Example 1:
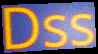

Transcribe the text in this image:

Dss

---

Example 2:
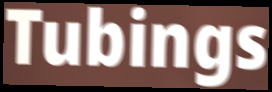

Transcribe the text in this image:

Tubings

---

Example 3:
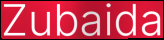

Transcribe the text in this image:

Zubaida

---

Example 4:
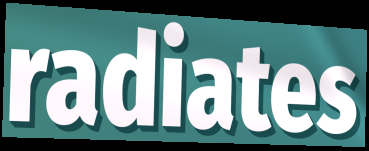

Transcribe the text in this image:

radiates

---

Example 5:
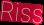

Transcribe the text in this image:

Riss